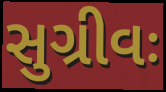
સુગ્રીવઃ